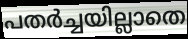
പതർച്ചയില്ലാതെ